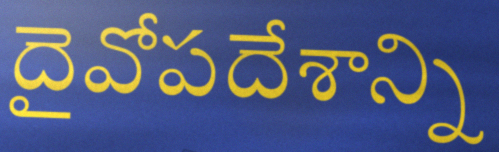
దైవోపదేశాన్ని